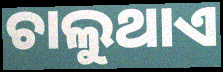
ଚାଲୁଥାଏ